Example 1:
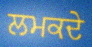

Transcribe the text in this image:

ਲਮਕਦੇ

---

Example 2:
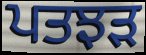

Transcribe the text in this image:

ਪਤਝਡ਼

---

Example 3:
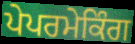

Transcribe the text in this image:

ਪੇਪਰਮੇਕਿੰਗ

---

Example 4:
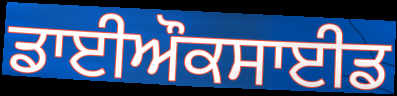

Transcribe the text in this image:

ਡਾਈਔਕਸਾਈਡ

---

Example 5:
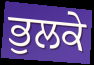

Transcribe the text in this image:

ਭੁਲਕੇ